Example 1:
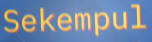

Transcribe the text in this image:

Sekempul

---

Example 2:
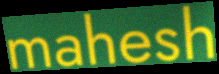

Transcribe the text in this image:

mahesh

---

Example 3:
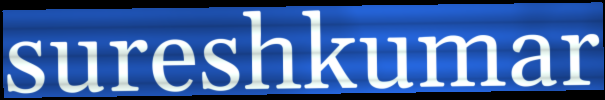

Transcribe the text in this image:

sureshkumar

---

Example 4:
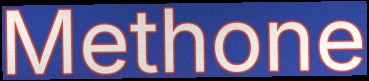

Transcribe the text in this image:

Methone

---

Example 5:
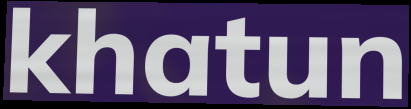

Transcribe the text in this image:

khatun